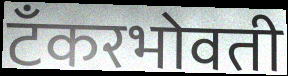
टँकरभोवती